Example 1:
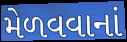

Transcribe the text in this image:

મેળવવાનાં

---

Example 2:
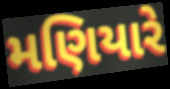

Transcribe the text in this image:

મણિયારે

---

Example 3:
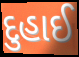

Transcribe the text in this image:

દુહાઈ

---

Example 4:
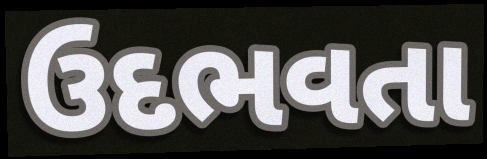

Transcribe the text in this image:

ઉદભવતા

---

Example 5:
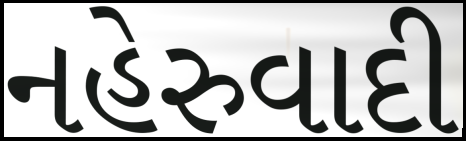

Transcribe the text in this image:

નહેરુવાદી